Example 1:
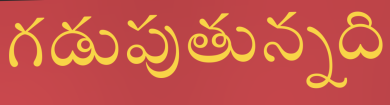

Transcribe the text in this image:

గడుపుతున్నది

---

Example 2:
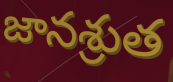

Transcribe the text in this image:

జానశ్రుత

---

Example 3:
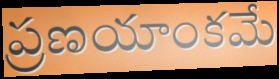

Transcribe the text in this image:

ప్రణయాంకమే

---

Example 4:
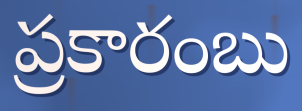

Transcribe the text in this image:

ప్రకారంబు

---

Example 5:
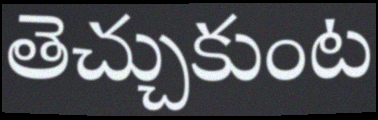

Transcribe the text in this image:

తెచ్చుకుంట